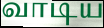
வாடிய